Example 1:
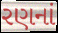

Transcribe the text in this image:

રણનાં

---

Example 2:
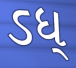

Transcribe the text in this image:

ઽધ્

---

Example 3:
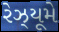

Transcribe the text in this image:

રેઝ્યૂમે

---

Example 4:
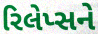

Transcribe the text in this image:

રિલેપ્સને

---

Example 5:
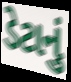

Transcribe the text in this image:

ડેટાનું